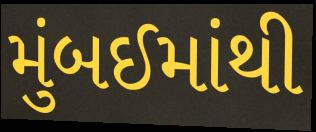
મુંબઈમાંથી